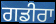
ਗਡੀਰਾ